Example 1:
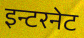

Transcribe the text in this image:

इन्टरनेट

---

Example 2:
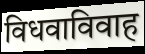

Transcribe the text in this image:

विधवाविवाह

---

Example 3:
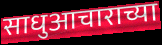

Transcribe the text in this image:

साधुआचाराच्या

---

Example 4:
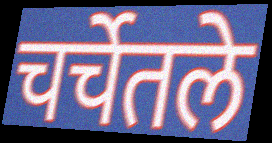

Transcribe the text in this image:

चर्चेतले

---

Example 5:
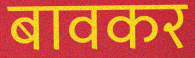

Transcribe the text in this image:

बावकर